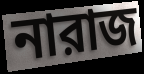
নারাজ